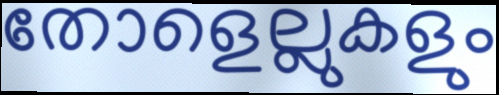
തോളെല്ലുകളും